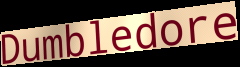
Dumbledore